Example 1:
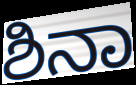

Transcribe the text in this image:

ಶಿನಾ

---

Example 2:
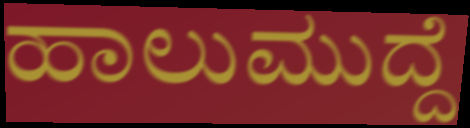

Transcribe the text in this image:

ಹಾಲುಮುದ್ದೆ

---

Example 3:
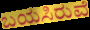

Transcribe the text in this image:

ಬಯಸಿರುವೆ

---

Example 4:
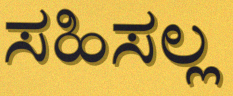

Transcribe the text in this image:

ಸಹಿಸಲ್ಲ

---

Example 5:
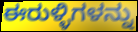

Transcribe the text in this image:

ಈರುಳ್ಳಿಗಳನ್ನು